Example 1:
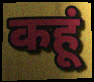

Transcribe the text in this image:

कहूं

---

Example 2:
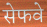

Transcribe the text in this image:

सेफवे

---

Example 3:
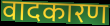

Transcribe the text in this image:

वादकारण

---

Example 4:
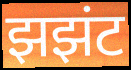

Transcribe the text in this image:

झझंट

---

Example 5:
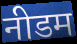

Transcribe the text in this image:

नीडम